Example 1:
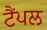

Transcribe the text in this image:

ਟੈਂਪਲ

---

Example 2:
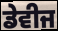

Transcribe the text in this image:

ਡੇਵੀਜ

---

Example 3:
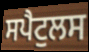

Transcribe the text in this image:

ਸਪੈਟੁਲਸ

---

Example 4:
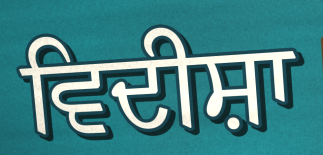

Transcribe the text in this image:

ਵਿਦੀਸ਼ਾ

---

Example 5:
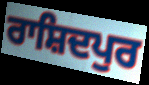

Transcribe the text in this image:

ਰਾਸ਼ਿਦਪੁਰ